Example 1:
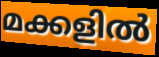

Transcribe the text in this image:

മക്കളിൽ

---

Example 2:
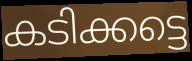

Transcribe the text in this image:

കടിക്കട്ടെ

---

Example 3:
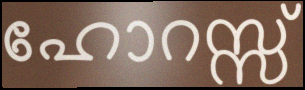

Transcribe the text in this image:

ഹോറസ്സ്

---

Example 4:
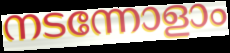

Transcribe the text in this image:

നടന്നോളാം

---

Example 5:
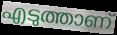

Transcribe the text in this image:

എടുത്താണ്